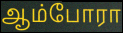
ஆம்போரா